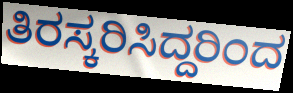
ತಿರಸ್ಕರಿಸಿದ್ದರಿಂದ